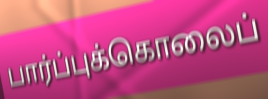
பார்ப்புக்கொலைப்